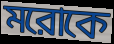
মরোকে